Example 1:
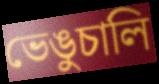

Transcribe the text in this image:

ভেঙুচালি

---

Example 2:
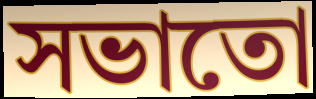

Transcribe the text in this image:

সভাতো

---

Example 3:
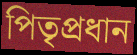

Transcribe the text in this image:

পিতৃপ্ৰধান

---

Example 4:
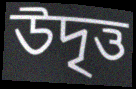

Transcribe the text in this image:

উদৃত্ত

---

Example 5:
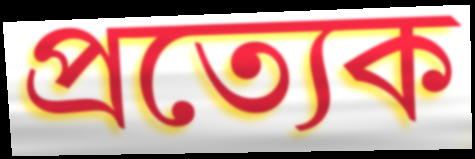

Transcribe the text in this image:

প্ৰত্য়েক